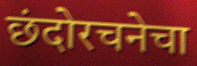
छंदोरचनेचा